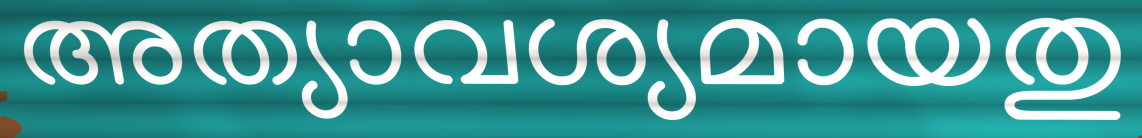
അത്യാവശ്യമായതു